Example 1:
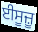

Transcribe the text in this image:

ਈਸੂਜ਼ੂ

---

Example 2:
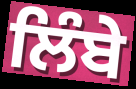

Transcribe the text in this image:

ਲਿੰਬੇ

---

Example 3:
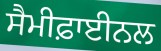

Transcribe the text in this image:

ਸੈਮੀਫ਼ਾਈਨਲ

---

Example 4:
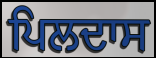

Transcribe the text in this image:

ਪਿਲਦਾਸ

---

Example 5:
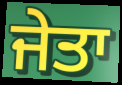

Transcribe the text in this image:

ਜੇਤਾ